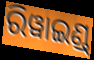
ରିୱାଇଣ୍ଡ୍